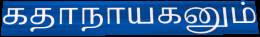
கதாநாயகனும்